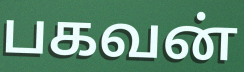
பகவன்